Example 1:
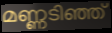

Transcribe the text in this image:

മണ്ണടിഞ്ഞ്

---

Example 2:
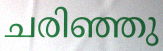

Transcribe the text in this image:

ചരിഞ്ഞു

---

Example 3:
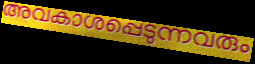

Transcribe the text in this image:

അവകാശപ്പെടുന്നവരും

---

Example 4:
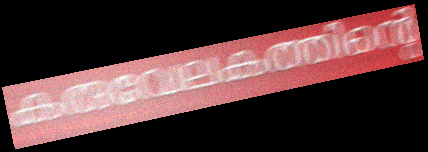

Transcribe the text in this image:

കരുവേലകത്തിന്റെ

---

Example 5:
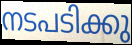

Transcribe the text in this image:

നടപടിക്കു